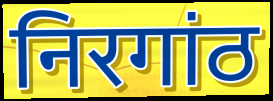
निरगांठ